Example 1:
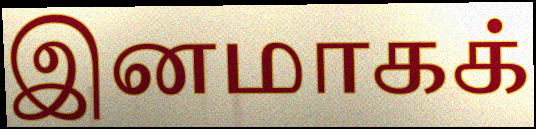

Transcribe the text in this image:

இனமாகக்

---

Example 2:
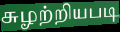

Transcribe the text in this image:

சுழற்றியபடி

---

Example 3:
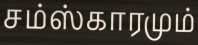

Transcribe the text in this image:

சம்ஸ்காரமும்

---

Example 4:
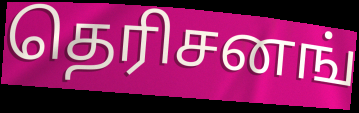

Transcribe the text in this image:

தெரிசனங்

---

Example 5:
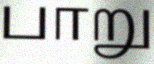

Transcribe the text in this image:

பாறு